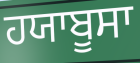
ਹਯਾਬੂਸਾ